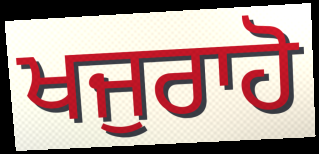
ਖਜੁਰਾਹੋ